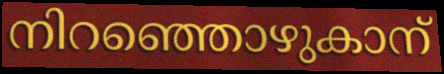
നിറഞ്ഞൊഴുകാന്